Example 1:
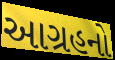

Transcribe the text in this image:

આગ્રહનો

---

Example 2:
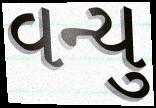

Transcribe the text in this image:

વન્યુ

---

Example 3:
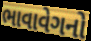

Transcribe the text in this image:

ભાવાવેગનો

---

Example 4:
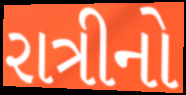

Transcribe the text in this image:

રાત્રીનો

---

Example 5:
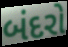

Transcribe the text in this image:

બંદરો